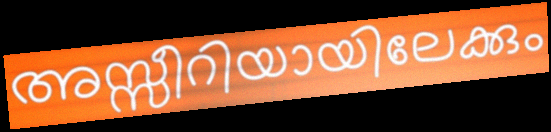
അസ്സീറിയായിലേക്കും